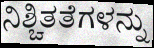
ನಿಶ್ಚಿತತೆಗಳನ್ನು